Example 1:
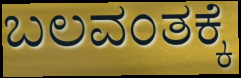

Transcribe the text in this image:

ಬಲವಂತಕ್ಕೆ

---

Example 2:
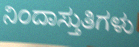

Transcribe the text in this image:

ನಿಂದಾಸ್ತುತಿಗಳು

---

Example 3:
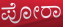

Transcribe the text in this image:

ಪೋರಾ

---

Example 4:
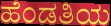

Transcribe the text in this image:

ಹೆಂಡತಿಯ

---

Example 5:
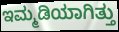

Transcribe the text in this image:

ಇಮ್ಮಡಿಯಾಗಿತ್ತು